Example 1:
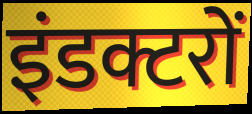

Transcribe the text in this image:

इंडक्टरों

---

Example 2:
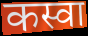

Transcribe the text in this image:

कस्वा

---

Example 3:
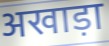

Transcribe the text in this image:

अखाड़ा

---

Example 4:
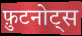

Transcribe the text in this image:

फ़ुटनोट्स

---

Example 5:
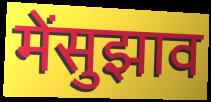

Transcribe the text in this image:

मेंसुझाव